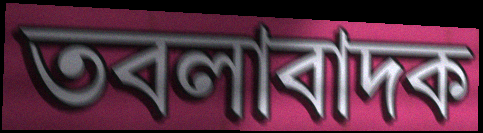
তবলাবাদক